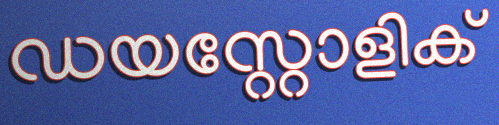
ഡയസ്റ്റോളിക്